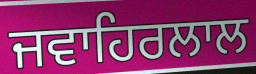
ਜਵਾਹਿਰਲਾਲ